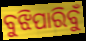
ବୁଝିପାରିବୁଁ